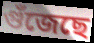
গুঁজেছে